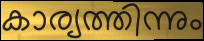
കാര്യത്തിന്നും